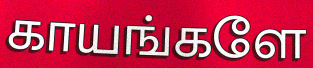
காயங்களே